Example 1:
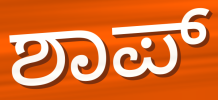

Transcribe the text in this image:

ಶಾಪ್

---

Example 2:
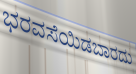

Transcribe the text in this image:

ಭರವಸೆಯಿಡಬಾರದು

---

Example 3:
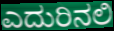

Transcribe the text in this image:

ಎದುರಿನಲಿ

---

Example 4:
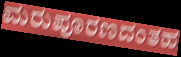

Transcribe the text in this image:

ಮರುಪೂರಣದಂತಹ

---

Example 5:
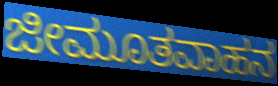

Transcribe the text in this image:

ಜೀಮೂತವಾಹನ